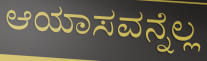
ಆಯಾಸವನ್ನೆಲ್ಲ